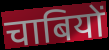
चाबियों